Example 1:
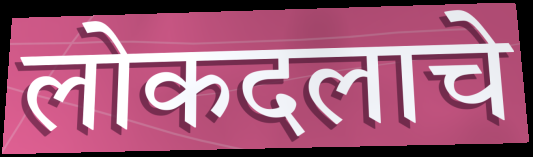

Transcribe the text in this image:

लोकदलाचे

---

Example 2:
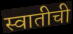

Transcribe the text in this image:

स्वातीची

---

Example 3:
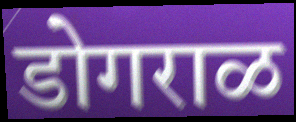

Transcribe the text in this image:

डोगराळ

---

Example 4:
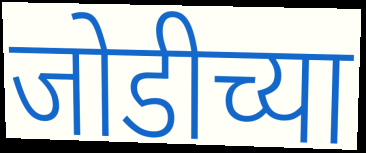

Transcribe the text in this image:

जोडीच्या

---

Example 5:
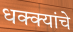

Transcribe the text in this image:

धक्क्यांचे